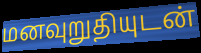
மனவுறுதியுடன்